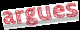
argues